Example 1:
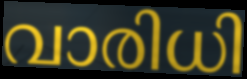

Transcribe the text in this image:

വാരിധി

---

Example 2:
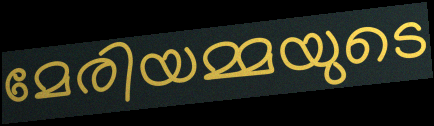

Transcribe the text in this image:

മേരിയമ്മയുടെ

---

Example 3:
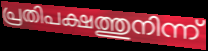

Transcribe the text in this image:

പ്രതിപക്ഷത്തുനിന്ന്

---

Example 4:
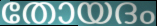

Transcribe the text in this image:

തോയദം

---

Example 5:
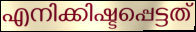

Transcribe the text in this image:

എനിക്കിഷ്ടപ്പെട്ടത്